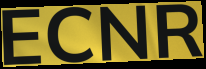
ECNR